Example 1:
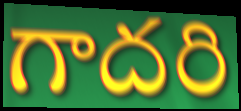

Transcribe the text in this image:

గాదరి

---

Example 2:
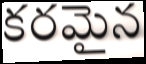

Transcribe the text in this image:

కరమైన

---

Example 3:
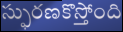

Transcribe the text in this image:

స్ఫురణకొస్తోంది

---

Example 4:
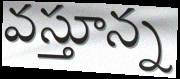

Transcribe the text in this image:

వస్తూన్న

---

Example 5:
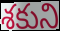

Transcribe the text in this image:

శకుని